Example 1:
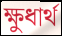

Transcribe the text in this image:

ক্ষুধার্থ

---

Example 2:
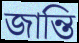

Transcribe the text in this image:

জান্তি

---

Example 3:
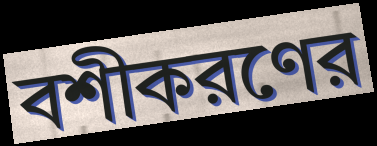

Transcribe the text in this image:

বশীকরণের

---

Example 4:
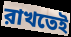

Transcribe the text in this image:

রাখতেই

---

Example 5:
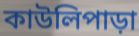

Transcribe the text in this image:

কাউলিপাড়া